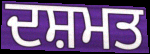
ਦਸ਼ਮਤ